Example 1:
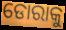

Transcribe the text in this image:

ଡୋରାକୁ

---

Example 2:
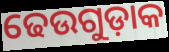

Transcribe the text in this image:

ଢେଉଗୁଡ଼ାକ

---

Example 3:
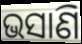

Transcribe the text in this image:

ଭସାଣି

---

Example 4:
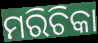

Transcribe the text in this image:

ମରିଚିକା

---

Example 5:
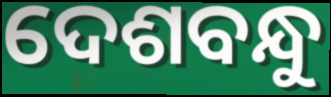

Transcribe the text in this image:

ଦେଶବନ୍ଧୁ